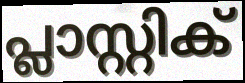
പ്ലാസ്റ്റിക്